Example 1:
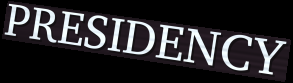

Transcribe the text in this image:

PRESIDENCY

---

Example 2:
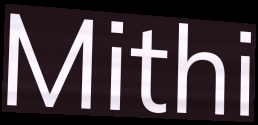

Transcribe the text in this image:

Mithi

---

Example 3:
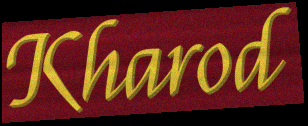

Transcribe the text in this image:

Kharod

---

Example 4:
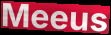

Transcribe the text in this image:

Meeus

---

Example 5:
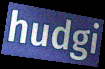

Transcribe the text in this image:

hudgi